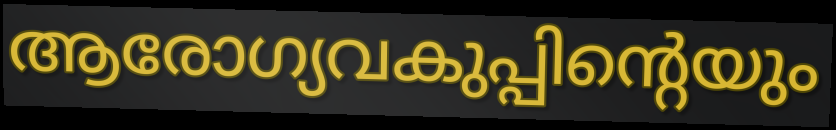
ആരോഗ്യവകുപ്പിന്റെയും